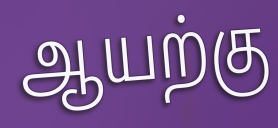
ஆயற்கு